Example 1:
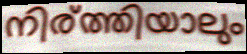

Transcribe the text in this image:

നിര്ത്തിയാലും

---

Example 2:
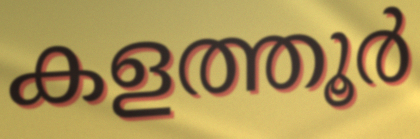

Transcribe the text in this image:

കളത്തൂർ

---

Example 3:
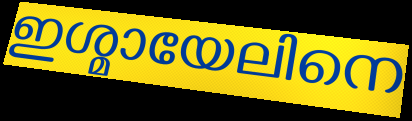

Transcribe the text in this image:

ഇശ്മായേലിനെ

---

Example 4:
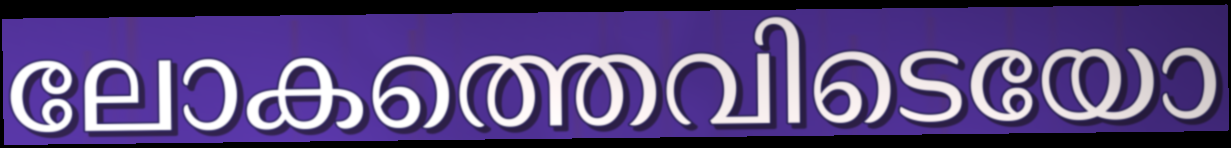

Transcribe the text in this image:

ലോകത്തെവിടെയോ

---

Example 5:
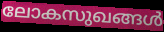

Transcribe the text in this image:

ലോകസുഖങ്ങൾ